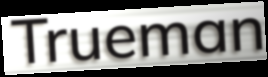
Trueman